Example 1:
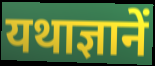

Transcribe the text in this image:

यथाज्ञानें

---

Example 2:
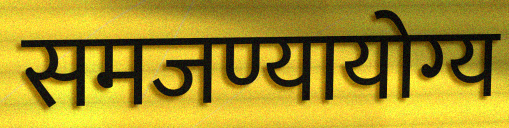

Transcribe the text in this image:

समजण्यायोग्य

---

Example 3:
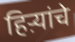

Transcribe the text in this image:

हिऱ्‍यांचे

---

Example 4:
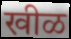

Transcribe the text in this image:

खीळ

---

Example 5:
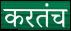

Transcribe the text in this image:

करतंच